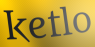
ketlo